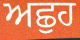
ਅਛੁਹ